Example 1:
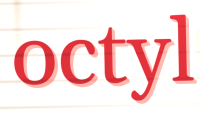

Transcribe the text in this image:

octyl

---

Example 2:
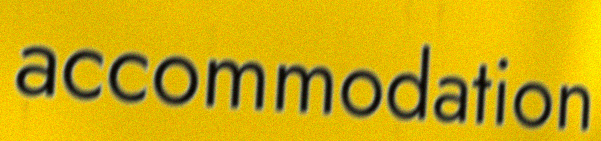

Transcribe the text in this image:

accommodation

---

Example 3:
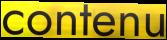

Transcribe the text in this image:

contenu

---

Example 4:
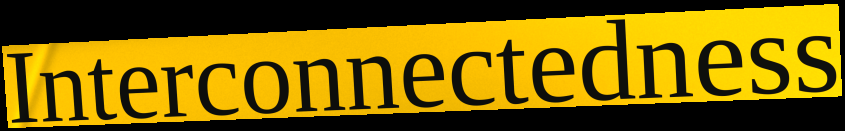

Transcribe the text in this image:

Interconnectedness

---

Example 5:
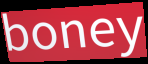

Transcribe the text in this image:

boney